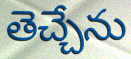
తెచ్చేను